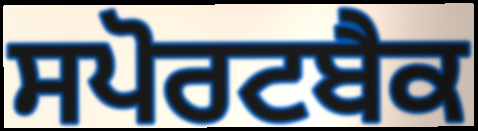
ਸਪੋਰਟਬੈਕ